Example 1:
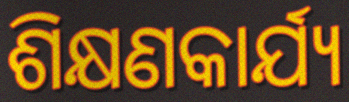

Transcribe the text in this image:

ଶିକ୍ଷଣକାର୍ଯ୍ୟ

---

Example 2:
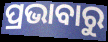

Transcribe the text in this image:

ପ୍ରଭାବାରୁ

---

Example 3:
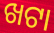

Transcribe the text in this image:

ଖଟା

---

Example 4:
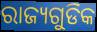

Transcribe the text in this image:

ରାଜ୍ୟଗୁଡିକ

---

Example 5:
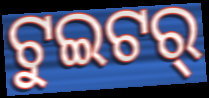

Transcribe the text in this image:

ଟୁଇଟର୍